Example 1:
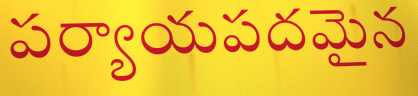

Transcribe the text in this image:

పర్యాయపదమైన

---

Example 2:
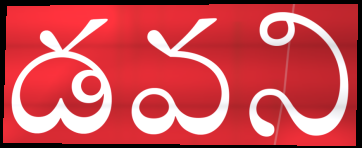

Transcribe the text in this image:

డవని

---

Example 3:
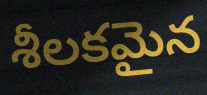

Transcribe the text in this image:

శీలకమైన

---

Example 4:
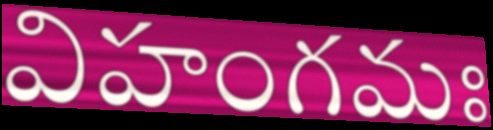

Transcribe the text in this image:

విహంగమః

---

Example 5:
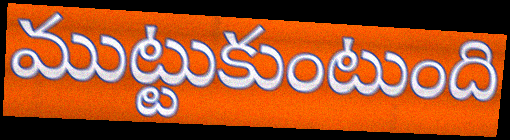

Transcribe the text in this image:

ముట్టుకుంటుంది